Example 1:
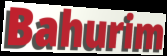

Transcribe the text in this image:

Bahurim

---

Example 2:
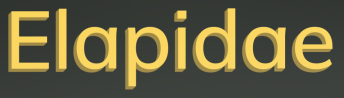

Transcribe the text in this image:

Elapidae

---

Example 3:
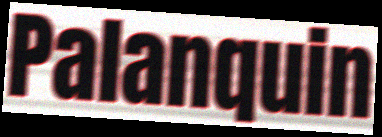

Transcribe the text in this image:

Palanquin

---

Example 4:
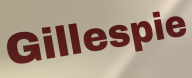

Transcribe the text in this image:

Gillespie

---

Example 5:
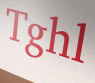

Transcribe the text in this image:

Tghl